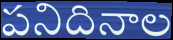
పనిదినాల